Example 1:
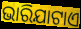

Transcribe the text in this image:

ଭାରିଯାଟାଏ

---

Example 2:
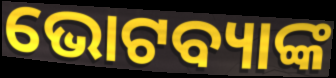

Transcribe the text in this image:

ଭୋଟବ୍ୟାଙ୍କ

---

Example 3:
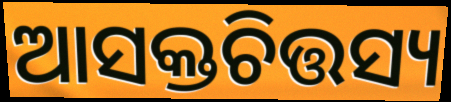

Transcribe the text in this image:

ଆସକ୍ତଚିତ୍ତସ୍ୟ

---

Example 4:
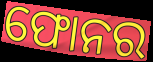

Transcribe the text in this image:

ଫୋନର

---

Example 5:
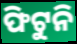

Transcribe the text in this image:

ଫିଟୁନି